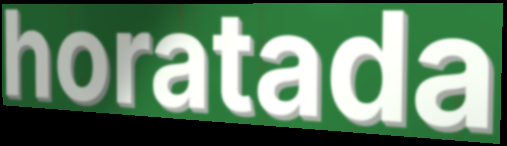
horatada